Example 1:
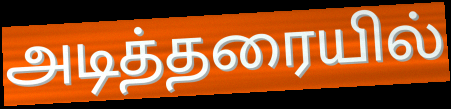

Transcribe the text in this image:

அடித்தரையில்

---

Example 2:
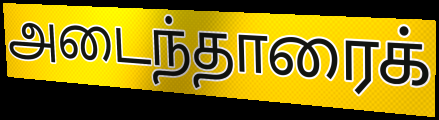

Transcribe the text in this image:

அடைந்தாரைக்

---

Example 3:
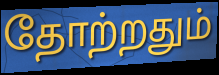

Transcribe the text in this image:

தோற்றதும்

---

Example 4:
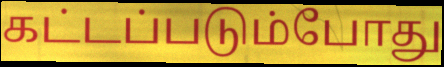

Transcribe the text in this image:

கட்டப்படும்போது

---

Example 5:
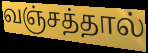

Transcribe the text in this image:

வஞ்சத்தால்